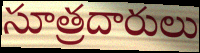
సూత్రదారులు